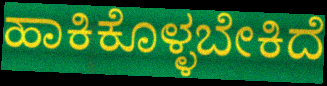
ಹಾಕಿಕೊಳ್ಳಬೇಕಿದೆ